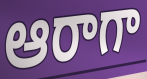
ఆరాగా